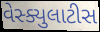
વેસ્ક્યુલાટીસ